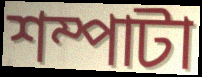
শম্পাটা